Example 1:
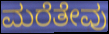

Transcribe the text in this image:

ಮರೆತೇವು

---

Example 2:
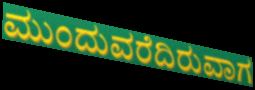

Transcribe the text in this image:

ಮುಂದುವರೆದಿರುವಾಗ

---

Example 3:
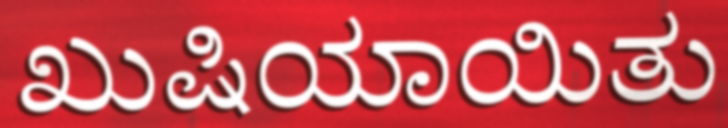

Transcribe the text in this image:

ಖುಷಿಯಾಯಿತು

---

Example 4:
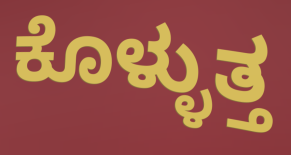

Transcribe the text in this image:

ಕೊಳ್ಳುತ್ತ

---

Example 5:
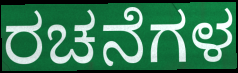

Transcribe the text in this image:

ರಚನೆಗಳ